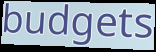
budgets